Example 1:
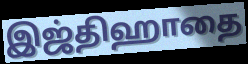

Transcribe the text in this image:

இஜ்திஹாதை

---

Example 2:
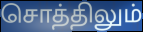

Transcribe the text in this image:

சொத்திலும்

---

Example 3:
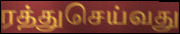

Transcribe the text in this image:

ரத்துசெய்வது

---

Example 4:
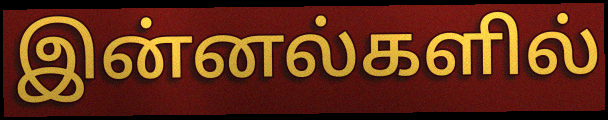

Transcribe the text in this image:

இன்னல்களில்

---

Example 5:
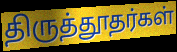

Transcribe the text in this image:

திருத்தூதர்கள்